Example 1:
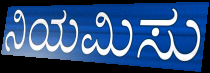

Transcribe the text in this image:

ನಿಯಮಿಸು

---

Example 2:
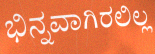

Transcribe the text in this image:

ಭಿನ್ನವಾಗಿರಲಿಲ್ಲ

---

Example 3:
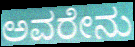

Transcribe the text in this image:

ಅವರೇನು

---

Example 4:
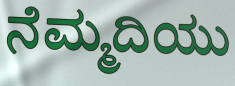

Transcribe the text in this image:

ನೆಮ್ಮದಿಯು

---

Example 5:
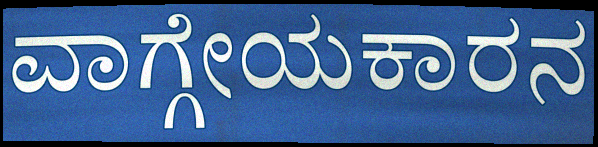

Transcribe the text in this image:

ವಾಗ್ಗೇಯಕಾರನ